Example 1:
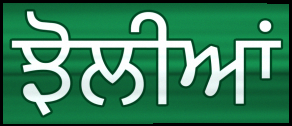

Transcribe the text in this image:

ਝੋਲੀਆਂ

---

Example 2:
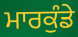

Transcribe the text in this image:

ਮਾਰਕੁੰਡੇ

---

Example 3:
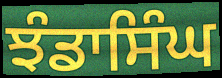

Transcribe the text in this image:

ਝੰਡਾਸਿੰਘ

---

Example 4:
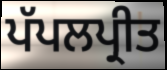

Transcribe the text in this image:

ਪੱਪਲਪ੍ਰੀਤ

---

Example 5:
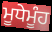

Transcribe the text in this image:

ਮੂਧੇਮੂੰਹ